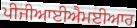
ਪੀਜੀਆਈਐਮਈਆਰ